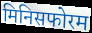
मिनिसफोरम